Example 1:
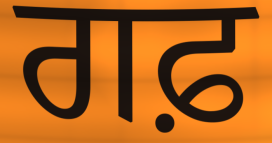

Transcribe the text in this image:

ਗਫ਼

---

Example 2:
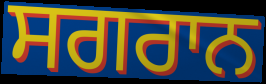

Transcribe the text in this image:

ਸਗਰਾਨ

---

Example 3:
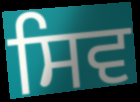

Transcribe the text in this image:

ਸਿਵ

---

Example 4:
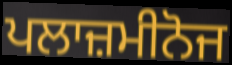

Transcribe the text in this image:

ਪਲਾਜ਼ਮੀਨੋਜ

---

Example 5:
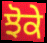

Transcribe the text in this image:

ਝੋਕੇ